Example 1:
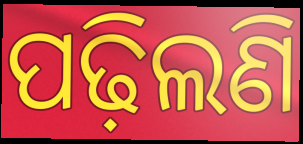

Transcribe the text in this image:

ପଢ଼ିଲଣି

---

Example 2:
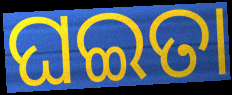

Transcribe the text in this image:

ଘଇତା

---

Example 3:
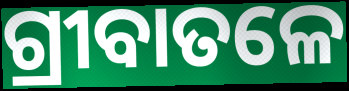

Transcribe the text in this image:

ଗ୍ରୀବାତଳେ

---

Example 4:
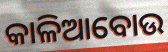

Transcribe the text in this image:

କାଳିଆବୋଉ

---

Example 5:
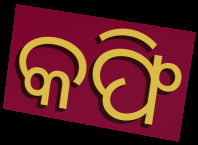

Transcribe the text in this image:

କଫି